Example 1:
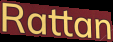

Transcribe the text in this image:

Rattan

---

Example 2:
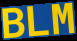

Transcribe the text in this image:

BLM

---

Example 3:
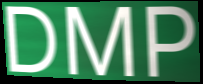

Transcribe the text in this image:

DMP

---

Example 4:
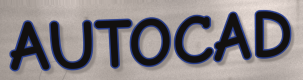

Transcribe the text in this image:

AUTOCAD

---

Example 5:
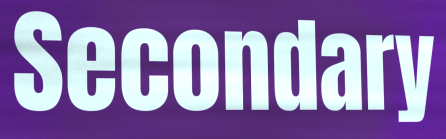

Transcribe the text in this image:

Secondary